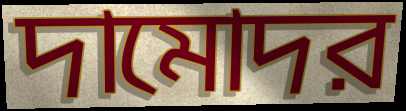
দামোদর